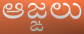
ఆజ్ఙలు